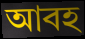
আবহ